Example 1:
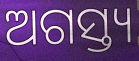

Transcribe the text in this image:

ଅଗସ୍ତ୍ୟ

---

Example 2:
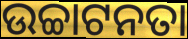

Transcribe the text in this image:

ଉଚ୍ଚାଟନତା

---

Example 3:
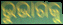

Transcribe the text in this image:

ଭୁଭାଗକୁ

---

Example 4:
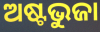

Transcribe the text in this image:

ଅଷ୍ଟଭୁଜା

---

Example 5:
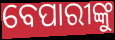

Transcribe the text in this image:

ବେପାରୀଙ୍କୁ